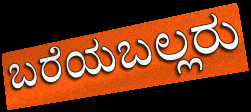
ಬರೆಯಬಲ್ಲರು